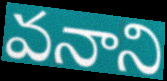
వనాని